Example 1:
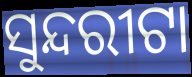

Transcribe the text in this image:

ସୁନ୍ଦରୀଟା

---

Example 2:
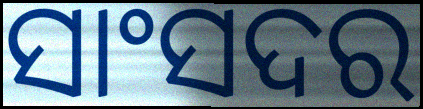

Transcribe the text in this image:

ସାଂସଦର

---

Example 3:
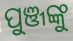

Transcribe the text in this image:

ପୁଞ୍ଜଙ୍କୁ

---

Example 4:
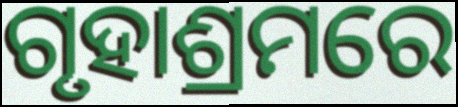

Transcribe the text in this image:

ଗୃହାଶ୍ରମରେ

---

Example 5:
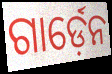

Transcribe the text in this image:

ଗାର୍ଡ଼େନ